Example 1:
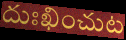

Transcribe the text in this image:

దుఃఖించుట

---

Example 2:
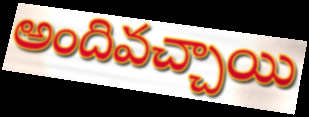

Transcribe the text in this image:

అందివచ్చాయి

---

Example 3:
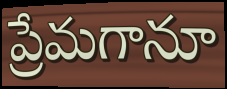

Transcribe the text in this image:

ప్రేమగానూ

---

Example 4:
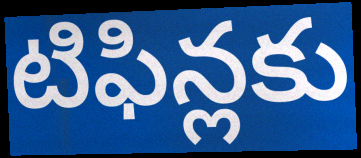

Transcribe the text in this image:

టిఫిన్లకు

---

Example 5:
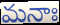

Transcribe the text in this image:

మనాః